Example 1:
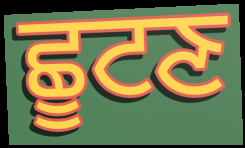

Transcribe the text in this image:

ਛੂਟਣ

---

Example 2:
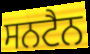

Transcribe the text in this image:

ਸਨਟੈਨ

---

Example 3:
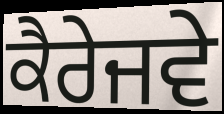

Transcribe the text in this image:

ਕੈਰੇਜਵੇ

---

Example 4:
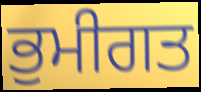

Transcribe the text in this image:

ਭੁਮੀਗਤ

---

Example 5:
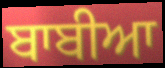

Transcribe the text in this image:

ਬਾਬੀਆ